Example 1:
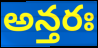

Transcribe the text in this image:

అన్తరః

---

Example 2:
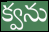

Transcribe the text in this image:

క్వను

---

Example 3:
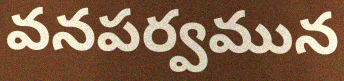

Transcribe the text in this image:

వనపర్వమున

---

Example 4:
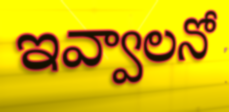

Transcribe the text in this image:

ఇవ్వాలనో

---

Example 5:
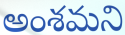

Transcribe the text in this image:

అంశమని